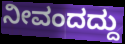
ನೀವಂದದ್ದು